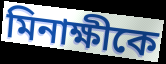
মিনাক্ষীকে